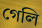
গেলি